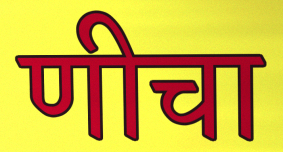
णीचा